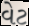
વેટ